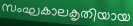
സംഘകാലകൃതിയായ